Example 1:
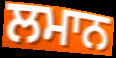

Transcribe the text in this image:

ਲਮਾਨ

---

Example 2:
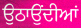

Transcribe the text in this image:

ਉਠਾਉਂਦੀਆਂ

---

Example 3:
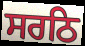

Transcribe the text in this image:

ਸਰਠਿ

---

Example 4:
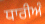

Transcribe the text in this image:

ਧਾਰੀਅੰ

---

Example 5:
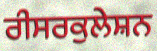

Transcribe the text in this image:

ਰੀਸਰਕੁਲੇਸ਼ਨ